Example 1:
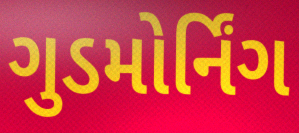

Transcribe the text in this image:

ગુડમોર્નિંગ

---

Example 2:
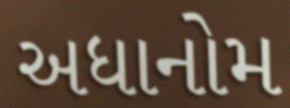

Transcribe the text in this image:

અધાનોમ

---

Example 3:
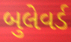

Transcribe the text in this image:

બુલેવર્ડ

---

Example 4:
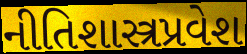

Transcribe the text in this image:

નીતિશાસ્ત્રપ્રવેશ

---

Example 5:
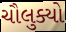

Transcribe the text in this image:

ચૌલુક્યો